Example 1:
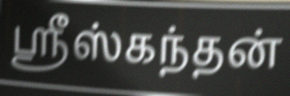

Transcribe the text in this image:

ஸ்ரீஸ்கந்தன்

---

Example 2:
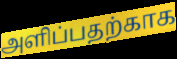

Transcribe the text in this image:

அளிப்பதற்காக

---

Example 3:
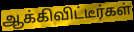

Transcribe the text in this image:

ஆக்கிவிட்டீர்கள்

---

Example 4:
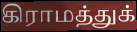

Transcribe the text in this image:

கிராமத்துக்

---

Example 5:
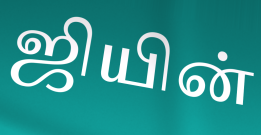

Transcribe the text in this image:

ஜியின்